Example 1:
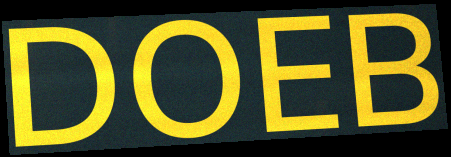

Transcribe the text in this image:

DOEB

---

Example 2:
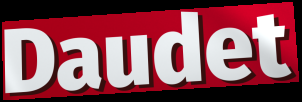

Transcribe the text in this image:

Daudet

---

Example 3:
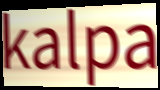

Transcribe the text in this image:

kalpa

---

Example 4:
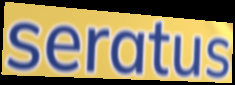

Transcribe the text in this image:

seratus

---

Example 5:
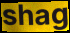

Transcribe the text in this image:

shag